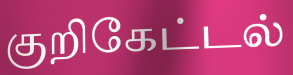
குறிகேட்டல்